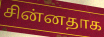
சின்னதாக